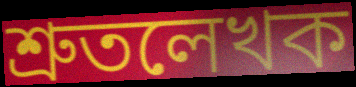
শ্রুতলেখক